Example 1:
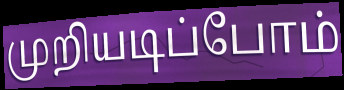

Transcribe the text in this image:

முறியடிப்போம்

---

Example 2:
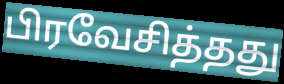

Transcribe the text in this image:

பிரவேசித்தது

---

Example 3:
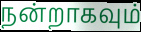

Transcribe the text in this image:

நன்றாகவும்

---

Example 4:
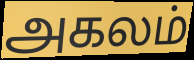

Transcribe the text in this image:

அகலம்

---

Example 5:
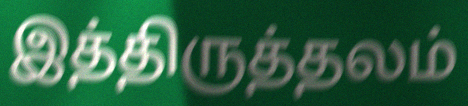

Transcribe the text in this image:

இத்திருத்தலம்